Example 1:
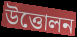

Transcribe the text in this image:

উত্তোলন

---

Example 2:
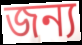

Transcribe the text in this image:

জন্য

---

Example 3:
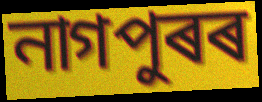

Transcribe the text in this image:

নাগপুৰৰ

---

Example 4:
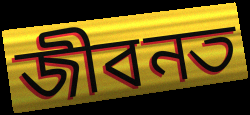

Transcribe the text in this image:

জীবনত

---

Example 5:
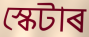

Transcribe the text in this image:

স্কেটাৰ